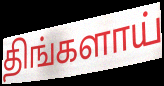
திங்களாய்